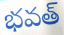
భవత్